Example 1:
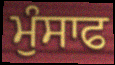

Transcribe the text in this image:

ਮੁੰਸਾਫ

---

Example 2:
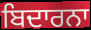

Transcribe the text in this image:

ਬਿਦਾਰਨਾ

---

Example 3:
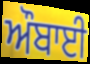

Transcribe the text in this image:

ਔਬਾਈ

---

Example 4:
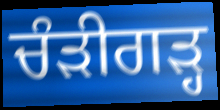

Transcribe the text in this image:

ਚੰੜੀਗੜ੍ਹ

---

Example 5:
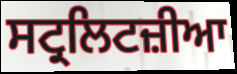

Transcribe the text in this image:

ਸਟ੍ਰਲਿਟਜ਼ੀਆ